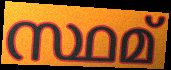
സ്ഥമ്